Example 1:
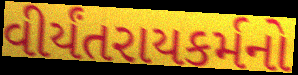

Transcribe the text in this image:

વીર્યંતરાયકર્મનો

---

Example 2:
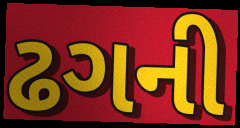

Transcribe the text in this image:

ઢગની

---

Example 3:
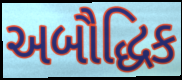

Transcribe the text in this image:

અબૌદ્ધિક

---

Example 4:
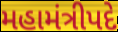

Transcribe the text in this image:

મહામંત્રીપદે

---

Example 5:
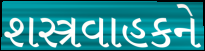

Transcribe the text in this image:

શસ્ત્રવાહકને